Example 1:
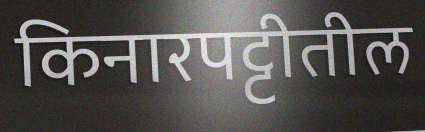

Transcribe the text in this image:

किनारपट्टीतील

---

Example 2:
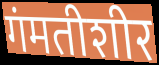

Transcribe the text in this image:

गंमतीशीर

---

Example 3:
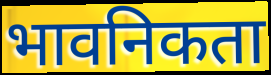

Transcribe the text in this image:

भावनिकता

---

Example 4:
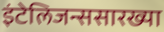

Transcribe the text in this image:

इंटेलिजन्ससारख्या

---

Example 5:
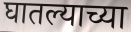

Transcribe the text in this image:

घातल्याच्या